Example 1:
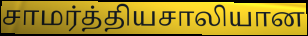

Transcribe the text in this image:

சாமர்த்தியசாலியான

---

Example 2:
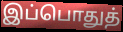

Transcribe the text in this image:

இப்பொதுத்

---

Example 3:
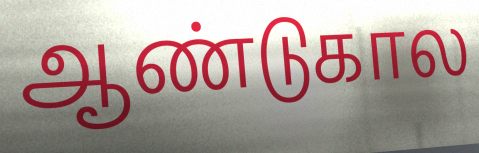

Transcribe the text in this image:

ஆண்டுகால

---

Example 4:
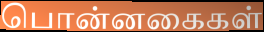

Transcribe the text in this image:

பொன்னகைகள்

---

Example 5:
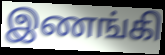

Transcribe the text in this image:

இணங்கி